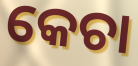
କେଚା